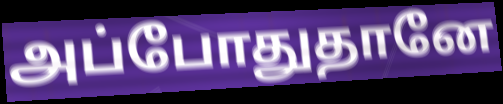
அப்போதுதானே